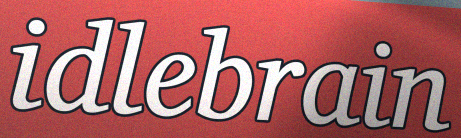
idlebrain